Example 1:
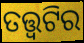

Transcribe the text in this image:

ତତ୍ତ୍ଵଟିର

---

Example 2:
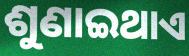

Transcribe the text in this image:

ଶୁଣାଇଥାଏ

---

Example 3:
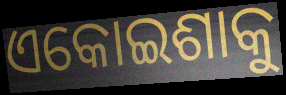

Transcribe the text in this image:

ଏକୋଇଶାକୁ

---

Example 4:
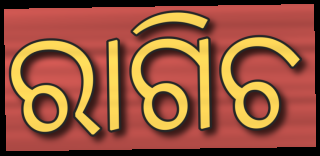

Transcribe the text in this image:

ରାଗିଚ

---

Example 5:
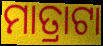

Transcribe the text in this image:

ମାତ୍ରାଟା